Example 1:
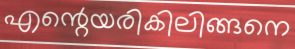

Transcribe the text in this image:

എന്റെയരികിലിങ്ങനെ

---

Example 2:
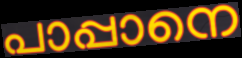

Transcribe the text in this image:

പാപ്പാനെ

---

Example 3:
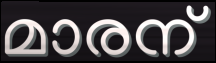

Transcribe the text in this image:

മാരന്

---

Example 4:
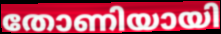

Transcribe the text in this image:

തോണിയായി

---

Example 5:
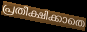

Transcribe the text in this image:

പ്രതീക്ഷിക്കാതെ